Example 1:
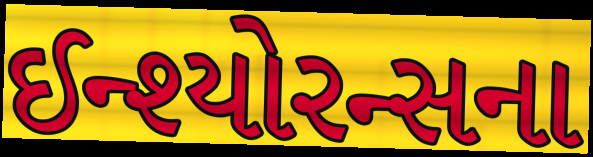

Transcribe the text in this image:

ઈન્શ્યોરન્સના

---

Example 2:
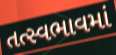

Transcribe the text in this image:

તત્સ્વભાવમાં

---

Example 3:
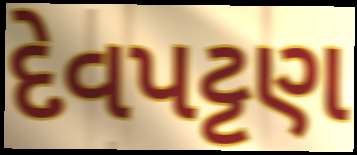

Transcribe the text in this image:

દેવપટ્ટણ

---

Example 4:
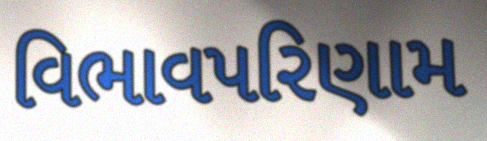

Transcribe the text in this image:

વિભાવપરિણામ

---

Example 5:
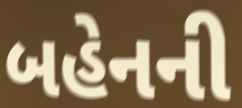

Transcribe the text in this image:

બહેનની